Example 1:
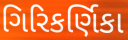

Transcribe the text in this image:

ગિરિકર્ણિકા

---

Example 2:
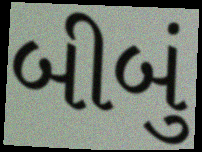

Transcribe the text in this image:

બીબું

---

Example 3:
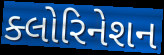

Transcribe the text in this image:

ક્લોરિનેશન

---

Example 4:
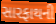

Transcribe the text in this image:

સારફાથની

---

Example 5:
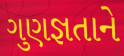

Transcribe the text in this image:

ગુણજ્ઞતાને